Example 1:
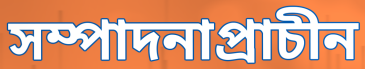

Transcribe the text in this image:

সম্পাদনাপ্রাচীন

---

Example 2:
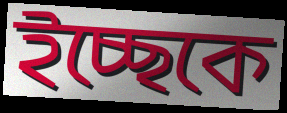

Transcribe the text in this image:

ইচ্ছেকে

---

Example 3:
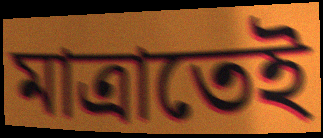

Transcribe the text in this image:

মাত্রাতেই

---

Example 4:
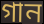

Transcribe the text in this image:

গান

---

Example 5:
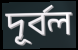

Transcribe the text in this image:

দূর্বল